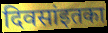
दिवसांइतका